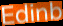
Edinb